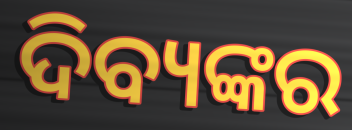
ଦିବ୍ୟଙ୍କର